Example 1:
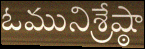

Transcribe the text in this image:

ఓమునిశ్రేష్ఠా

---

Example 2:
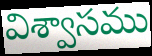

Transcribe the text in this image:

విశ్వాసము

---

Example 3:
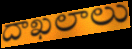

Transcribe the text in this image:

దాఖలాలు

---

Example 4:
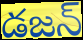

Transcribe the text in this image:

డజన్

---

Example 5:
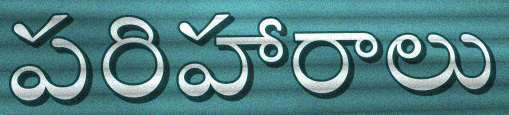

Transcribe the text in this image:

పరిహారాలు